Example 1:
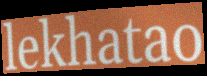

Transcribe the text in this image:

lekhatao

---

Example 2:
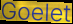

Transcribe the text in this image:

Goelet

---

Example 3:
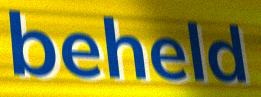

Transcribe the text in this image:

beheld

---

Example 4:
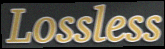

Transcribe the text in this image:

Lossless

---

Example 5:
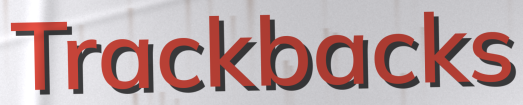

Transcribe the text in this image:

Trackbacks